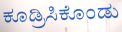
ಕೂಡ್ರಿಸಿಕೊಂಡು